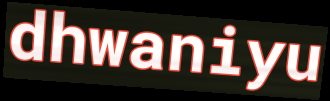
dhwaniyu